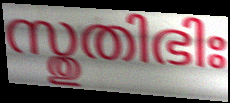
സ്തുതിഭിഃ